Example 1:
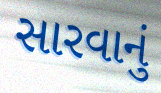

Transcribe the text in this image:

સારવાનું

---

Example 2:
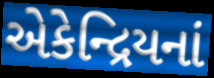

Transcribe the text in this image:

એકેન્દ્રિયનાં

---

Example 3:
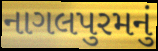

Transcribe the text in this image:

નાગલપુરમનું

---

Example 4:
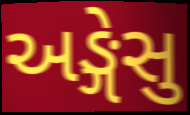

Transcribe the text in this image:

અઙ્ગેસુ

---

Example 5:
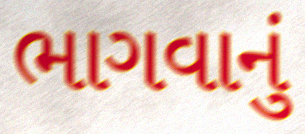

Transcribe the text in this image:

ભાગવાનું